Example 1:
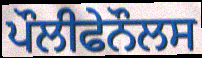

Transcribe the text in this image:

ਪੌਲੀਫੇਨੌਲਸ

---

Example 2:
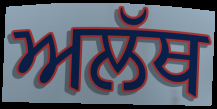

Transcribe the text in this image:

ਅਲੱਥ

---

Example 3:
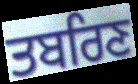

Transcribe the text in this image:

ਤਬਰਿਣ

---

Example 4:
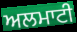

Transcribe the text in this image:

ਅਲਮਾਟੀ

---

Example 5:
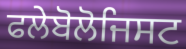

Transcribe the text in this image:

ਫਲੇਬੋਲੋਜਿਸਟ